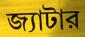
জ্যাটার